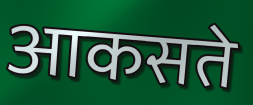
आकसते